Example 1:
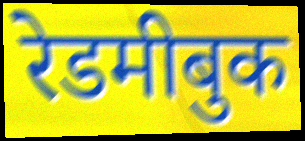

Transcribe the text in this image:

रेडमीबुक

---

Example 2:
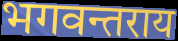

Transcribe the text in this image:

भगवन्तराय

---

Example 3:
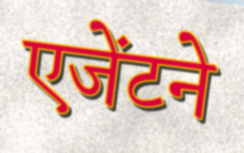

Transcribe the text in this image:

एजेंटने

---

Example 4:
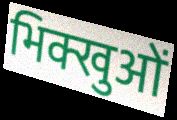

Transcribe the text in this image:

भिक्खुओं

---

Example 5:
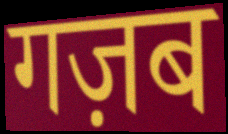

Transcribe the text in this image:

गज़ब